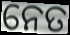
ନେତ